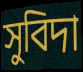
সুবিদা